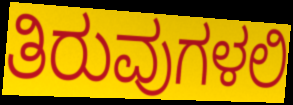
ತಿರುವುಗಳಲಿ